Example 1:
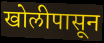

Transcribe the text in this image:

खोलीपासून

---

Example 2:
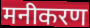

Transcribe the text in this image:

मनीकरण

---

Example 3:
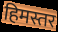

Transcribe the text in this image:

हिमस्तर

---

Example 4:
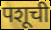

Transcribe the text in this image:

पशूची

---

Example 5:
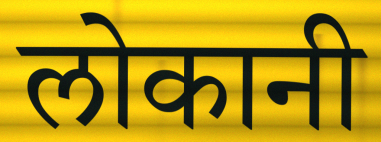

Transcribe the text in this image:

लोकानी